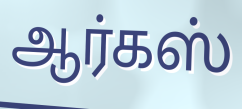
ஆர்கஸ்